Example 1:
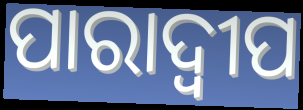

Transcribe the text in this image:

ପାରାଦ୍ୱୀପ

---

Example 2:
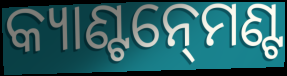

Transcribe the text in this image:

କ୍ୟାଣ୍ଟନ୍‍ମେଣ୍ଟ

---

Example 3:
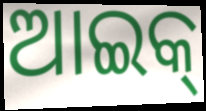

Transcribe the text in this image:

ଆଇକ୍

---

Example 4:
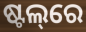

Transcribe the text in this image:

ଷ୍ଟଲ୍‌ରେ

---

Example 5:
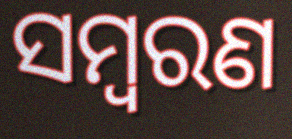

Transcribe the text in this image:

ସମ୍ୱରଣ